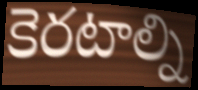
కెరటాల్ని